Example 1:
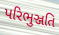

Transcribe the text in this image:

પરિભુઞ્જતિ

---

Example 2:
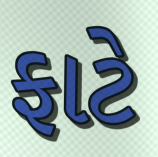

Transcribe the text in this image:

ફાટે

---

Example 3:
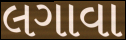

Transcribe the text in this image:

લગાવા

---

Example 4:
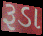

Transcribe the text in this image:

રૂડા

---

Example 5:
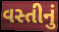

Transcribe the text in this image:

વસ્તીનું